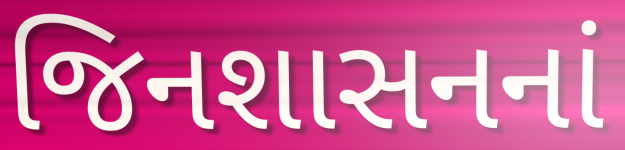
જિનશાસનનાં